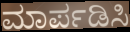
ಮಾರ್ಪಡಿಸಿ